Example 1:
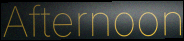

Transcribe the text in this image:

Afternoon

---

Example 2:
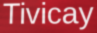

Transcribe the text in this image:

Tivicay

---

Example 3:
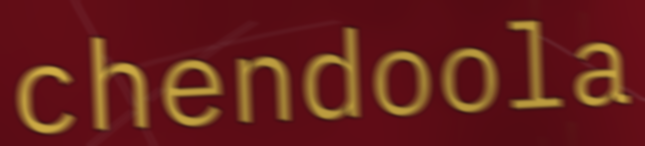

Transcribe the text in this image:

chendoola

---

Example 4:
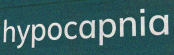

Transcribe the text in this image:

hypocapnia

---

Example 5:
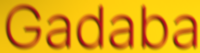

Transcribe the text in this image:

Gadaba